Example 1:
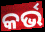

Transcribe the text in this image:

କର୍ଭ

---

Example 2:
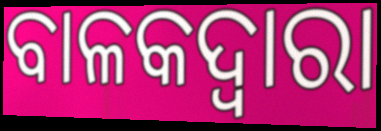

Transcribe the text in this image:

ବାଳକଦ୍ୱାରା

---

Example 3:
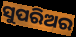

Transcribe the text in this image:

ସୁପରିଅର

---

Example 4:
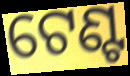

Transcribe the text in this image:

ଟେଣ୍ଟ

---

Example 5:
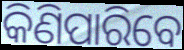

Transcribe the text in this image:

କିଣିପାରିବେ